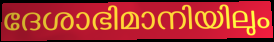
ദേശാഭിമാനിയിലും